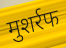
मुशर्रफ